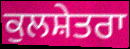
ਕੁਲਸ਼ੇਤਰਾ